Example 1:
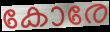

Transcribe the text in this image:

കോരേ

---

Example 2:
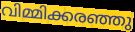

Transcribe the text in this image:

വിമ്മിക്കരഞ്ഞു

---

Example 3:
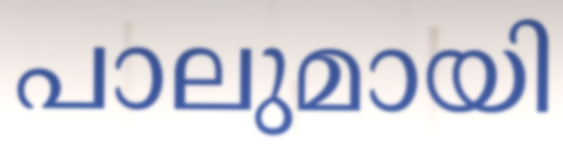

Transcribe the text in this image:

പാലുമായി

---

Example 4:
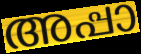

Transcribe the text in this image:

അപ്പാ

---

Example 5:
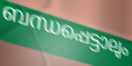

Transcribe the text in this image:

ബന്ധപ്പെട്ടാലും